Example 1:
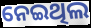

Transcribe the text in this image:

ନେଇଥିଲ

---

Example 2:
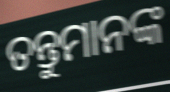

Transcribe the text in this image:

ତନ୍ତୁମାନଙ୍କ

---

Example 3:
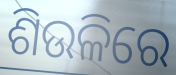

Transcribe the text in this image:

ଶିଉଳିରେ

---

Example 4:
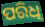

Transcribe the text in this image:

ପରିଧି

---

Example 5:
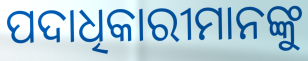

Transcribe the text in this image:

ପଦାଧିକାରୀମାନଙ୍କୁ